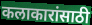
कलाकारांसाठी